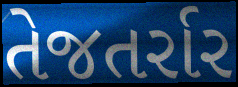
તેજતર્રાર